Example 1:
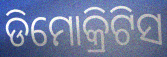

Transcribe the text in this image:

ଡିମୋକ୍ରିଟିସ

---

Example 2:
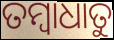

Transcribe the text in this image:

ତମ୍ବାଧାତୁ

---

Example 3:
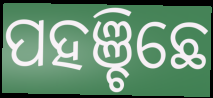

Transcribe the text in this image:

ପହଞ୍ଚିଛେ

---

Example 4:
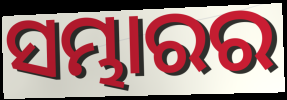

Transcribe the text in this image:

ସମ୍ଭାରର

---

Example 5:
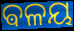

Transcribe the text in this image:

ଵଳୟ